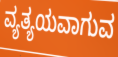
ವ್ಯತ್ಯಯವಾಗುವ